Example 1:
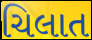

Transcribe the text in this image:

ચિલાત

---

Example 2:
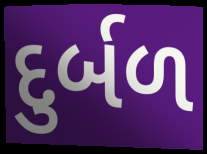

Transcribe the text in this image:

દુર્બળ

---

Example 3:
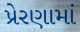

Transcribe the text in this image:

પ્રેરણામાં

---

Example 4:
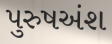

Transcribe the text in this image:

પુરુષઅંશ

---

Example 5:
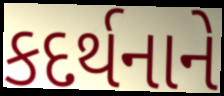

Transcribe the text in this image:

કદર્થનાને